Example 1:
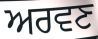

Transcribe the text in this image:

ਅਰਵਣ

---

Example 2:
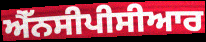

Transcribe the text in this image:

ਐੱਨਸੀਪੀਸੀਆਰ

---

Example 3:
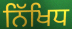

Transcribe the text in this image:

ਨਿੱਖਿਧ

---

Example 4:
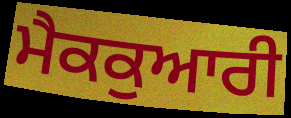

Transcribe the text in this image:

ਮੈਕਕੁਆਰੀ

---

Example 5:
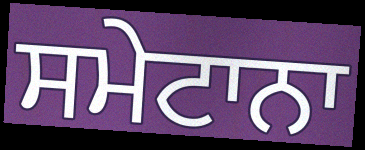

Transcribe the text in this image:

ਸਮੇਟਾਨਾ